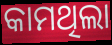
କାମଥିଲା